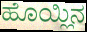
ಹೊಯ್ಲಿನ